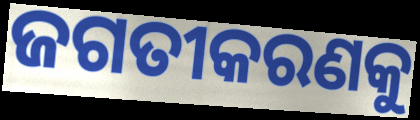
ଜଗତୀକରଣକୁ